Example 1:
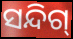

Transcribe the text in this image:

ସନ୍ଦିଗ୍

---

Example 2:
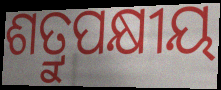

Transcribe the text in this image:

ଶତ୍ରୁପକ୍ଷୀୟ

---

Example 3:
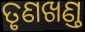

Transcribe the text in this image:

ତୃଣଖଣ୍ଡ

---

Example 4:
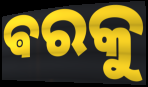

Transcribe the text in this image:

ଵରକୁ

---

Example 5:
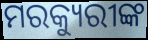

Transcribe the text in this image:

ମରକ୍ୟୁରୀଙ୍କ